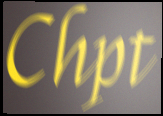
Chpt